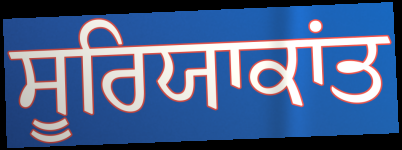
ਸੂਰਿਯਾਕਾਂਤ